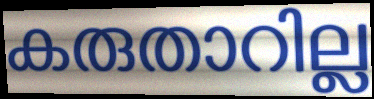
കരുതാറില്ല